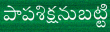
పాపశిక్షనుబట్టి